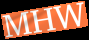
MHW